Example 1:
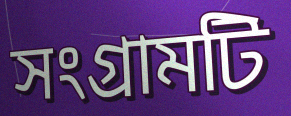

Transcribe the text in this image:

সংগ্রামটি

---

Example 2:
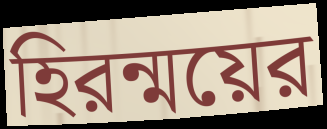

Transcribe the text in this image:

হিরন্ময়ের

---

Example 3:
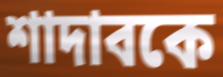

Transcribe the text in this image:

শাদাবকে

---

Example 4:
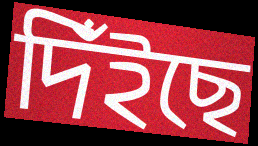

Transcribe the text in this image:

দিঁইছে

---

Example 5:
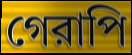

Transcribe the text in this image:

গেরাপি